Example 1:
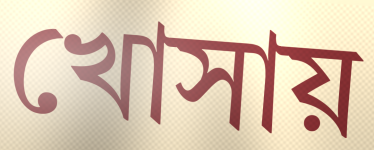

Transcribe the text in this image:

খোসায়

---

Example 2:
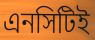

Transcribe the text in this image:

এনসিটিই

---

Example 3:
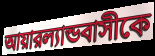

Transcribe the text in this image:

আয়ারল্যান্ডবাসীকে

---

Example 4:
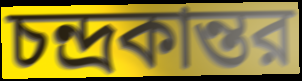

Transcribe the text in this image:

চন্দ্রকান্তর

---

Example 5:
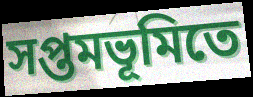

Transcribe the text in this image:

সপ্তমভূমিতে